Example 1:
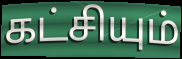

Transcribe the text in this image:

கட்சியும்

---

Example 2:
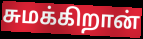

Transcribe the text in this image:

சுமக்கிறான்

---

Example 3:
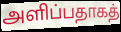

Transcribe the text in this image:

அளிப்பதாகத்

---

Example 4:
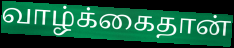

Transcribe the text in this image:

வாழ்க்கைதான்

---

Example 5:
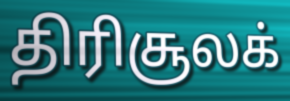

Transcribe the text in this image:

திரிசூலக்